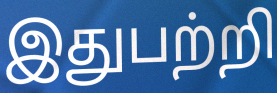
இதுபற்றி